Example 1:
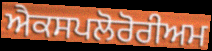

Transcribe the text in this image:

ਐਕਸਪਲੋਰੋਰੀਅਮ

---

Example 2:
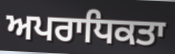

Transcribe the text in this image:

ਅਪਰਾਧਿਕਤਾ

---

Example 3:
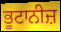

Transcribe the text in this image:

ਭੂਟਾਨੀਜ਼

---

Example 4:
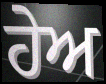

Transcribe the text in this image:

ਹੇਅ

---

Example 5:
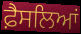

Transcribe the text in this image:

ਫ਼ੈਸਲਿਆਂ